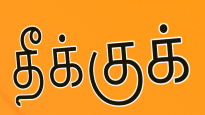
தீக்குக்